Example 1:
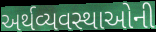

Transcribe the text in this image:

અર્થવ્યવસ્થાઓની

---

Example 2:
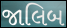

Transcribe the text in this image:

જાલિબ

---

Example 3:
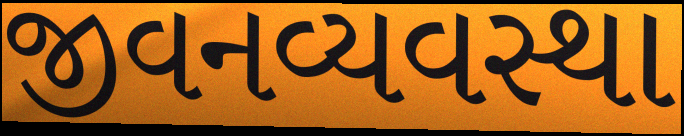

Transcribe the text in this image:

જીવનવ્યવસ્થા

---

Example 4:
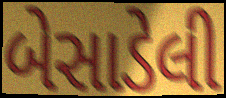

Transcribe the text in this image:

બેસાડેલી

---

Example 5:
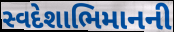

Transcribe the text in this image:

સ્વદેશાભિમાનની